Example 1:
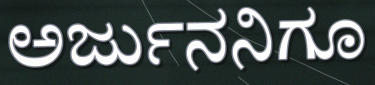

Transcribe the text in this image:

ಅರ್ಜುನನಿಗೂ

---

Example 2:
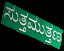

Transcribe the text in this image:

ಸುತ್ತಮುತ್ತಣ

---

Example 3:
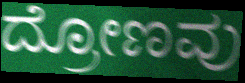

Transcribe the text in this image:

ದ್ರೋಣವು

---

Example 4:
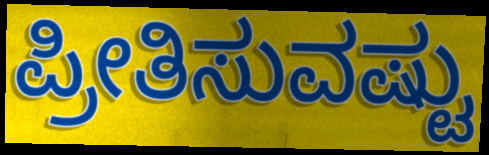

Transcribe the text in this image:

ಪ್ರೀತಿಸುವಷ್ಟು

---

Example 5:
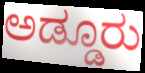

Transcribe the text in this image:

ಅಡ್ಡೂರು